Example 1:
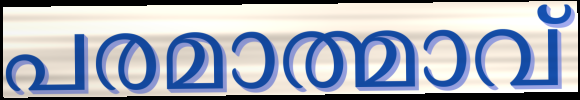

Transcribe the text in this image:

പരമാത്മാവ്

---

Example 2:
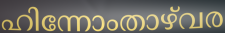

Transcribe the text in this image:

ഹിന്നോംതാഴ്‌വര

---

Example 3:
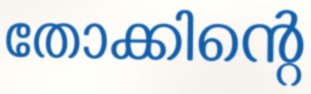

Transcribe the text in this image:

തോക്കിന്റെ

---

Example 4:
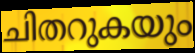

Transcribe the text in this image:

ചിതറുകയും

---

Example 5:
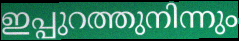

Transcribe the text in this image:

ഇപ്പുറത്തുനിന്നും